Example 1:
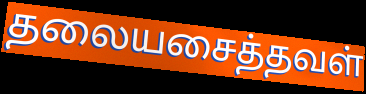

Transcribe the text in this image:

தலையசைத்தவள்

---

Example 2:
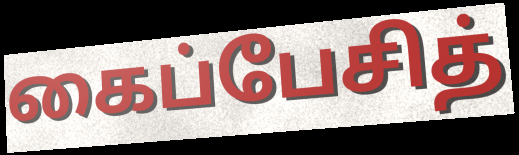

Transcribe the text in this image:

கைப்பேசித்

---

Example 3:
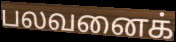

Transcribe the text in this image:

பலவனைக்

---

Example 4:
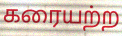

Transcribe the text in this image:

கரையற்ற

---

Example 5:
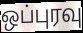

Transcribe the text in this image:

ஒப்புரவு